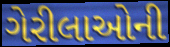
ગેરીલાઓની